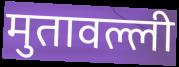
मुतावल्ली